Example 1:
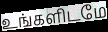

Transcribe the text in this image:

உங்களிடமே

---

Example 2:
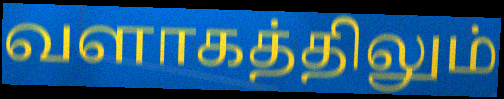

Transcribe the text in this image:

வளாகத்திலும்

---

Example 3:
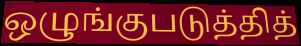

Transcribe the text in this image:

ஒழுங்குபடுத்தித்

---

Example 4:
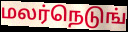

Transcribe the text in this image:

மலர்நெடுங்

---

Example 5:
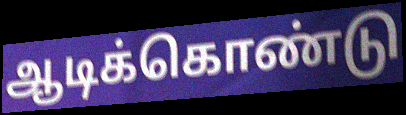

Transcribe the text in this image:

ஆடிக்கொண்டு